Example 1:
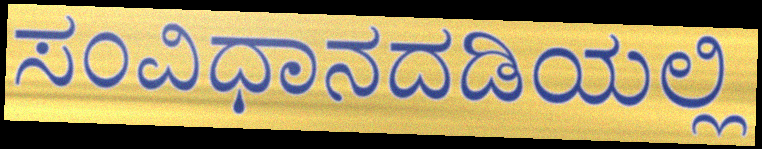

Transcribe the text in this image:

ಸಂವಿಧಾನದಡಿಯಲ್ಲಿ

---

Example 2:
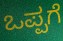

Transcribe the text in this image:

ಒಪ್ಪಗೆ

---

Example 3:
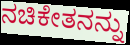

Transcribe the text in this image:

ನಚಿಕೇತನನ್ನು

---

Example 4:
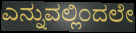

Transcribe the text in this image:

ಎನ್ನುವಲ್ಲಿಂದಲೇ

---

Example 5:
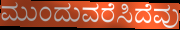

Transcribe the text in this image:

ಮುಂದುವರೆಸಿದೆವು